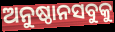
ଅନୁଷ୍ଠାନସବୁକୁ